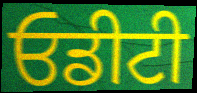
ਓਡੀਟੀ